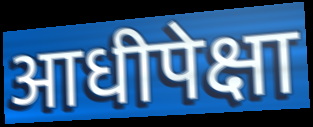
आधीपेक्षा